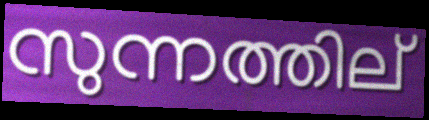
സുന്നത്തില്